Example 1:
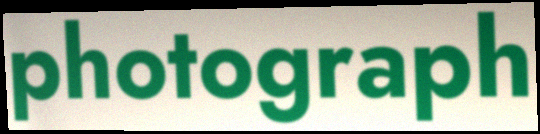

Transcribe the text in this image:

photograph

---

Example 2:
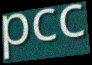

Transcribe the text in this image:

pcc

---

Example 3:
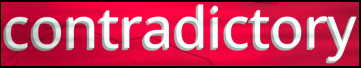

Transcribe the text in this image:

contradictory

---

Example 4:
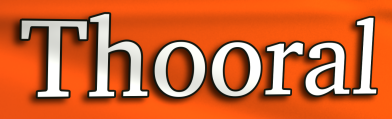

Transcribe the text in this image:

Thooral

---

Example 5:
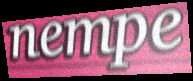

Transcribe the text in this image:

nempe